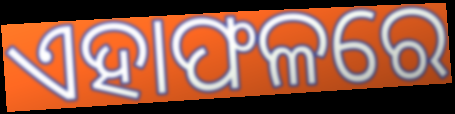
ଏହାଫଳରେ